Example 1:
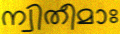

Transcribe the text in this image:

ന്വിതീമാഃ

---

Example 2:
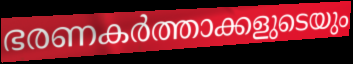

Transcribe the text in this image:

ഭരണകർത്താക്കളുടെയും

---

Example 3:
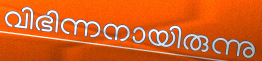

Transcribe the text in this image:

വിഭിന്നനായിരുന്നു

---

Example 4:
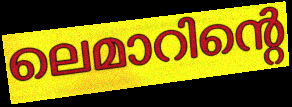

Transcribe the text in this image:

ലെമാറിന്റെ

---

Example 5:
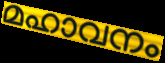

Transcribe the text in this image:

മഹാവനം